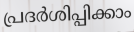
പ്രദർശിപ്പിക്കാം